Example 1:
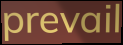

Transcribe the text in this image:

prevail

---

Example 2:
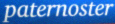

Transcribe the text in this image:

paternoster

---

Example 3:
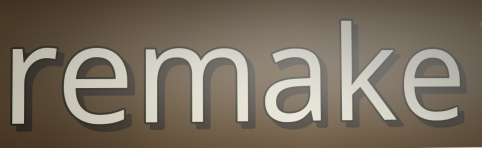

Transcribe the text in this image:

remake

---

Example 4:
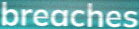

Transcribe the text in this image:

breaches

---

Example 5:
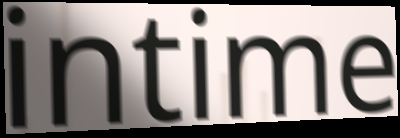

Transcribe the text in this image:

intime